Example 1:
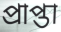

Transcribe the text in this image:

প্রাপ্তা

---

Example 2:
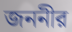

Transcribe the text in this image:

জননীর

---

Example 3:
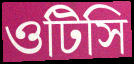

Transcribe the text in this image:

ওটিসি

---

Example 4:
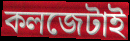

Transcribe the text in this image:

কলজেটাই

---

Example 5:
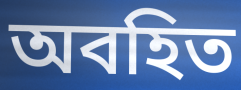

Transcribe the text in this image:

অবহিত